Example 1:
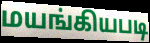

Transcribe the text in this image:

மயங்கியபடி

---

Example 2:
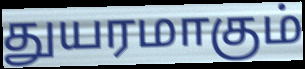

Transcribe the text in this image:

துயரமாகும்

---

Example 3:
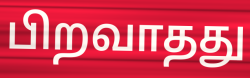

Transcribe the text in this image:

பிறவாதது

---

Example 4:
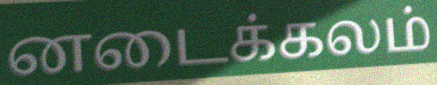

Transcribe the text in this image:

னடைக்கலம்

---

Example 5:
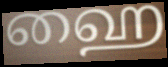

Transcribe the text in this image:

ஹை